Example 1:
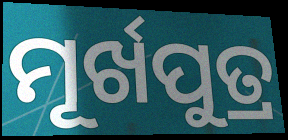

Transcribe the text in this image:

ମୂର୍ଖପୁତ୍ର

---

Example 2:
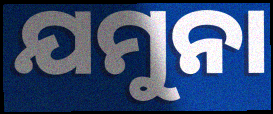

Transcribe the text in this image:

ଯମୁନା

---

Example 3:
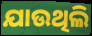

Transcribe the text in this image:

ଯାଉଥିଲି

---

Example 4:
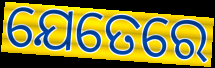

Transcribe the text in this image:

ଯେତେରେ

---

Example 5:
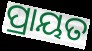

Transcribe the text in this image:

ପ୍ରାୟତ